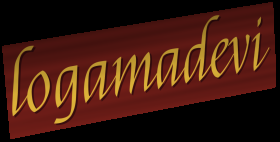
logamadevi